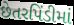
છેતરપિંડીમાં